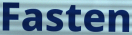
Fasten